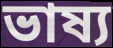
ভাষ্য